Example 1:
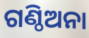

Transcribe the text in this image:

ଗଣ୍ଠିଅନା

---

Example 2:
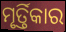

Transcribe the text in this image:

ମୃର୍ତ୍ତିକାର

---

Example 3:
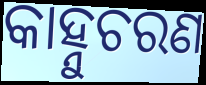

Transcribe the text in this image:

କାହ୍ନୁଚରଣ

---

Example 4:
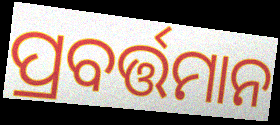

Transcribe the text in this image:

ପ୍ରବର୍ତ୍ତମାନ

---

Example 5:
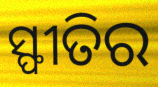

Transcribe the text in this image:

ସ୍ଫୀତିର